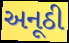
અનૂઠી